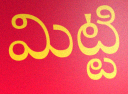
మిట్టి